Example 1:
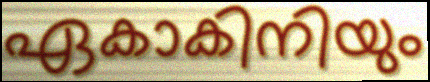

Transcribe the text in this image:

ഏകാകിനിയും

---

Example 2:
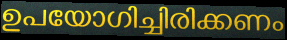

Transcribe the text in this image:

ഉപയോഗിച്ചിരിക്കണം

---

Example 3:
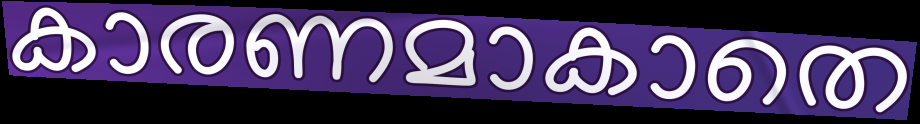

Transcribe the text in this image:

കാരണമാകാതെ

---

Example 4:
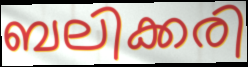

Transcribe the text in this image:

ബലിക്കരി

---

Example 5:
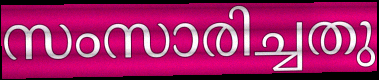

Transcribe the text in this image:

സംസാരിച്ചതു